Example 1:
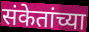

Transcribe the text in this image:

संकेतांच्या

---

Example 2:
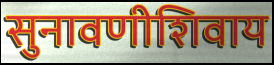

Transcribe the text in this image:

सुनावणीशिवाय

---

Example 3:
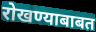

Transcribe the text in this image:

रोखण्याबाबत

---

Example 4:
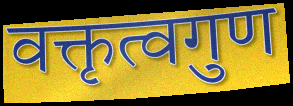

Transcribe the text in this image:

वक्तृत्वगुण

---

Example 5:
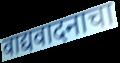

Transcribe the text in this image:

वाद्यवादनाचा